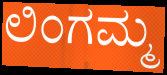
ಲಿಂಗಮ್ಮ